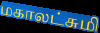
மகாலட்சுமி